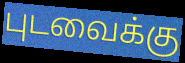
புடவைக்கு